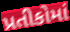
પ્રતીકોમાં